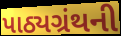
પાઠ્યગ્રંથની